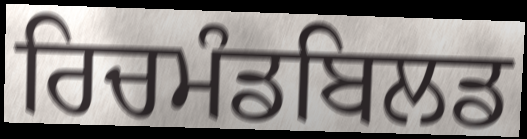
ਰਿਚਮੰਡਬਿਲਡ